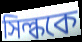
সিল্ককে